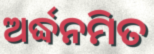
ଅର୍ଦ୍ଧନମିତ